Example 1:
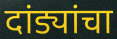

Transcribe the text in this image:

दांड्यांचा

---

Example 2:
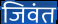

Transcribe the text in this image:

जिवंत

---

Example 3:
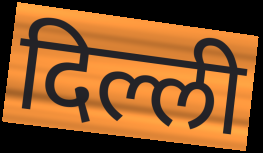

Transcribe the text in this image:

दिल्‍ली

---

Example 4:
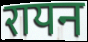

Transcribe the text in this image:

रायन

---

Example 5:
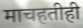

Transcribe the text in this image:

माचहतीही